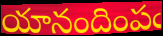
యానందింపఁ